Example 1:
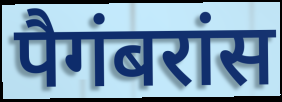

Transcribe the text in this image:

पैगंबरांस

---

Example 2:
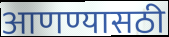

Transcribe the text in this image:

आणण्यासठी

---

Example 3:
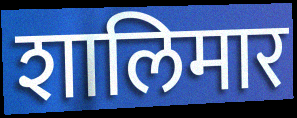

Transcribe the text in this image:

शालिमार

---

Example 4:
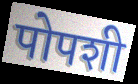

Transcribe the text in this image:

पोपशी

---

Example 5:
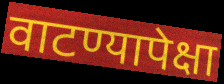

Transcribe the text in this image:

वाटण्यापेक्षा